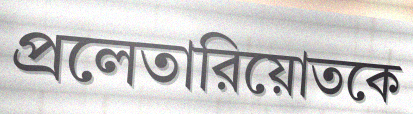
প্রলেতারিয়োতকে